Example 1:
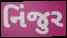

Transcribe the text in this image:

નિંજુર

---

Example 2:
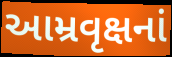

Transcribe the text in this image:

આમ્રવૃક્ષનાં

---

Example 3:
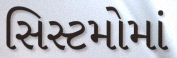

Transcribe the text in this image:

સિસ્ટમોમાં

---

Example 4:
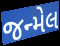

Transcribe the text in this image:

જન્મેલ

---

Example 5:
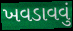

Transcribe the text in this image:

ખવડાવવું